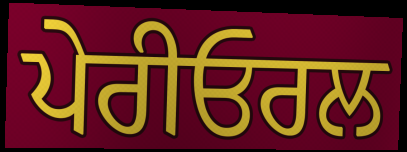
ਪੇਰੀਓਰਲ